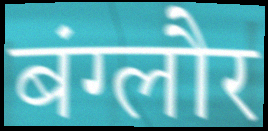
बंग्लौर